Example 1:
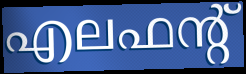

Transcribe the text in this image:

എലഫന്റ്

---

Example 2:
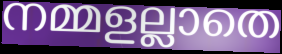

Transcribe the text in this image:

നമ്മളല്ലാതെ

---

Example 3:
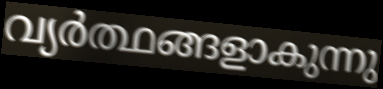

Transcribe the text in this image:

വ്യർത്ഥങ്ങളാകുന്നു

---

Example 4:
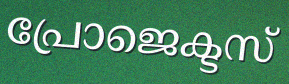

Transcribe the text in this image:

പ്രോജെക്ടസ്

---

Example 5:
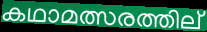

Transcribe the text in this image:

കഥാമത്സരത്തില്